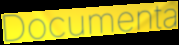
Documenta